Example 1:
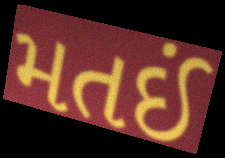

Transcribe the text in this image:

મતઈં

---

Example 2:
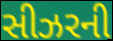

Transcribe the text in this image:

સીઝરની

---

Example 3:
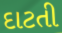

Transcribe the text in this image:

દાટતી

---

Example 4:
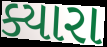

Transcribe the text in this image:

ક્યારા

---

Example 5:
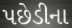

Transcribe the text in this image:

પછેડીના